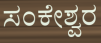
ಸಂಕೇಶ್ವರ